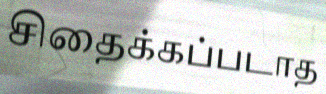
சிதைக்கப்படாத